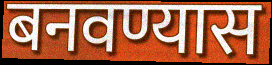
बनवण्यास